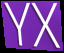
YX